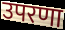
उपरणा